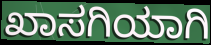
ಖಾಸಗಿಯಾಗಿ